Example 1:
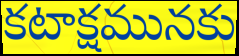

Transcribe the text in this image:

కటాక్షమునకు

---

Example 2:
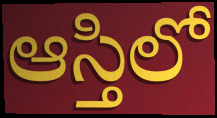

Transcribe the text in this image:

ఆస్తిలో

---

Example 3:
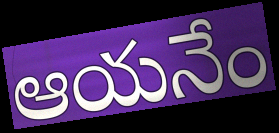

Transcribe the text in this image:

ఆయనేం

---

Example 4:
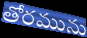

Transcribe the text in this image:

తోరమును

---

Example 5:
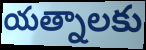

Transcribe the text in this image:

యత్నాలకు